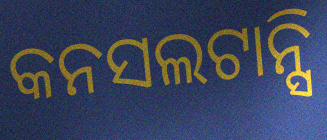
କନସଲଟାନ୍ସି